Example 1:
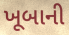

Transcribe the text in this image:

ખૂબાની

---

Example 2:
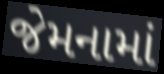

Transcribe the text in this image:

જેમનામાં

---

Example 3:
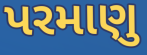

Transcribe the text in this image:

પરમાણુ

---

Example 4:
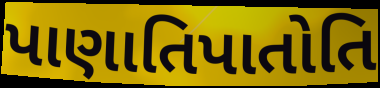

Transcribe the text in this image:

પાણાતિપાતોતિ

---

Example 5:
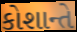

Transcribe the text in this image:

કોશાન્તે